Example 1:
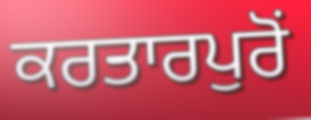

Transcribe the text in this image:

ਕਰਤਾਰਪੁਰੋਂ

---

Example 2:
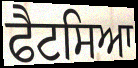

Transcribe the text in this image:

ਫੈਟਸਿਆ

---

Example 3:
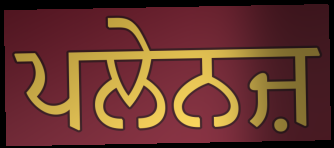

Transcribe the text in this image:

ਪਲੇਨਜ਼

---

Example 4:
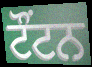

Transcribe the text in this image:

ਟੌਂਟਨ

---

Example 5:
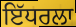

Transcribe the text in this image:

ਇੱਧਰਲਾ